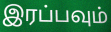
இரப்பவும்